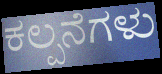
ಕಲ್ಪನೆಗಳು